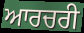
ਆਰਚਰੀ